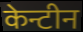
केन्टीन